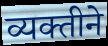
व्यक्तीने